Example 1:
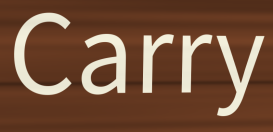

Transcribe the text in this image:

Carry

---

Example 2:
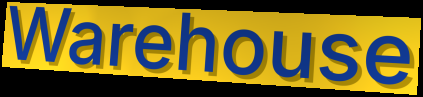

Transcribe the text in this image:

Warehouse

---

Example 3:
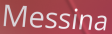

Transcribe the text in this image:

Messina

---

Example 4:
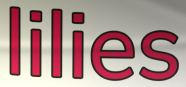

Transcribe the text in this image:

lilies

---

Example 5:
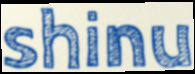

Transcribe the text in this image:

shinu